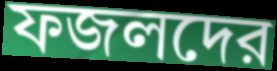
ফজলদের